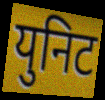
युनिट